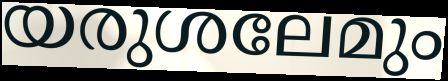
യരുശലേമും